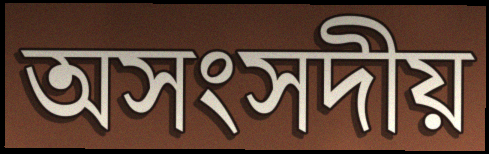
অসংসদীয়